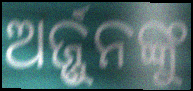
ଅର୍ଜ୍ଜୁନଙ୍କୁ